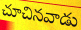
చూచినవాడు